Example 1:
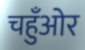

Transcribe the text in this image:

चहुँओर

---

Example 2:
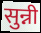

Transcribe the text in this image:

सुन्नी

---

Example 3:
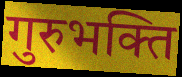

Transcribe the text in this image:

गुरुभक्ति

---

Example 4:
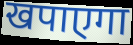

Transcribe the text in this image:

खपाएगा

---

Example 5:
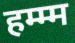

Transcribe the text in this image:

हम्म्म